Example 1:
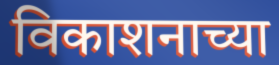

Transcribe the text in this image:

विकाशनाच्या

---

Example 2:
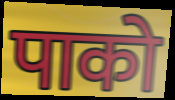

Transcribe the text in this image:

पाको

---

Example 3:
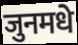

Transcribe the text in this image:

जुनमधे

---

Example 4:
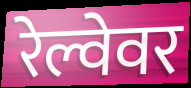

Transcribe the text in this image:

रेल्वेवर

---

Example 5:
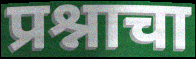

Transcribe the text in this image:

प्रश्नाचा